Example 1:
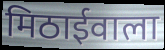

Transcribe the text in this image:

मिठाईवाला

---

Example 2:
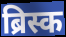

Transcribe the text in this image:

ब्रिस्क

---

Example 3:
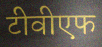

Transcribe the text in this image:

टीवीएफ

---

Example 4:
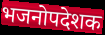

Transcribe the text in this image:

भजनोपदेशक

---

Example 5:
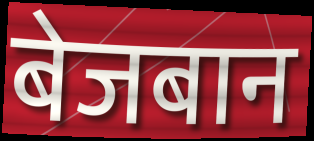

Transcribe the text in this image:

बेजबान